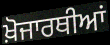
ਖ਼ੋਜਾਰਥੀਆਂ